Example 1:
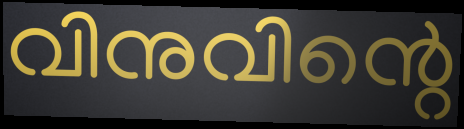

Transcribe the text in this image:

വിനുവിന്റെ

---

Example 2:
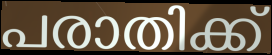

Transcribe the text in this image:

പരാതിക്ക്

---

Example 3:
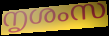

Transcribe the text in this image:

നൃശംസ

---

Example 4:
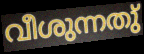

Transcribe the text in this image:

വീശുന്നതു്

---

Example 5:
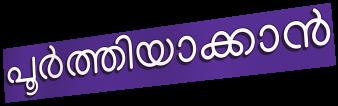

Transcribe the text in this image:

പൂർത്തിയാക്കാൻ